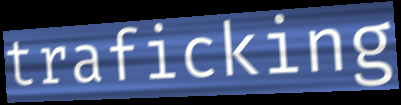
traficking